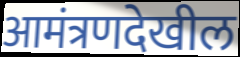
आमंत्रणदेखील